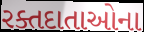
રક્તદાતાઓના